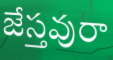
జేస్తవురా